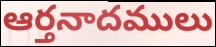
ఆర్తనాదములు